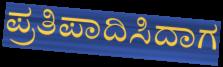
ಪ್ರತಿಪಾದಿಸಿದಾಗ